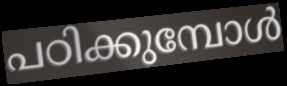
പഠിക്കുമ്പോൾ